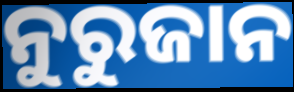
ନୁରୁଜାନ